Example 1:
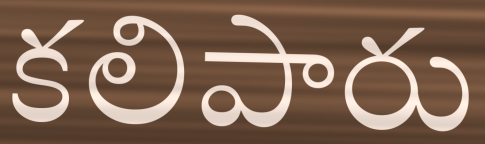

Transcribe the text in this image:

కలిపారు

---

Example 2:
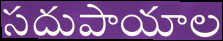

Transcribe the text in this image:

సదుపాయాల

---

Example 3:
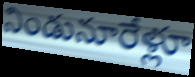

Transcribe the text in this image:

నిండునూరేళ్లూ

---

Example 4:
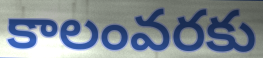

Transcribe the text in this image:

కాలంవరకు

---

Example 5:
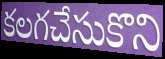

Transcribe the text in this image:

కలగచేసుకొని